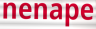
nenape